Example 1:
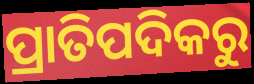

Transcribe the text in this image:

ପ୍ରାତିପଦିକରୁ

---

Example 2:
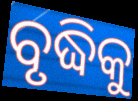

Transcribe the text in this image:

ବୃଦ୍ଧିକୁ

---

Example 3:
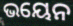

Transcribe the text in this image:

ଭୟେନ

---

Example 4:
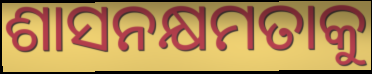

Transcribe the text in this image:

ଶାସନକ୍ଷମତାକୁ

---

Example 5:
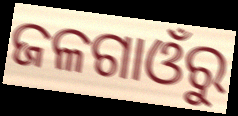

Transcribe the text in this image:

ଜଳଗାଓଁରୁ